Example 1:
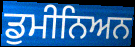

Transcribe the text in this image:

ਡੁਮੀਨਿਅਨ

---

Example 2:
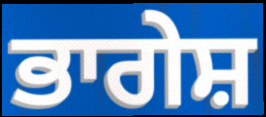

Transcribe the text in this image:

ਭਾਗੇਸ਼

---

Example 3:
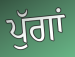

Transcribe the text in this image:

ਪੁੱਗਾਂ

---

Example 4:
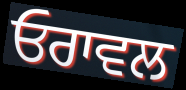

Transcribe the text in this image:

ਓਰਾਵਲ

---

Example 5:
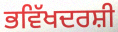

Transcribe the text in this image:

ਭਵਿੱਖਦਰਸ਼ੀ